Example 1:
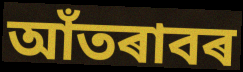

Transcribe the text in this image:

আঁতৰাবৰ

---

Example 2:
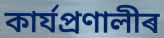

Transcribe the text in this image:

কাৰ্যপ্ৰণালীৰ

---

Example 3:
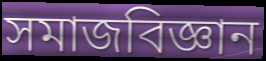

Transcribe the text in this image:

সমাজবিজ্ঞান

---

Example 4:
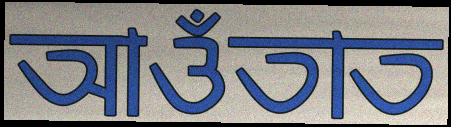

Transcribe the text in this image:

আওঁতাত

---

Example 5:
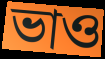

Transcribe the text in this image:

ভাও